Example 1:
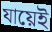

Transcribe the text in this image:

যায়েই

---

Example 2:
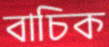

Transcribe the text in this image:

বাচিক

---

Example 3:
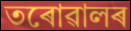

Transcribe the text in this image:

তৰোৱালৰ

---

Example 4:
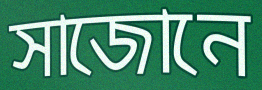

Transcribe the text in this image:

সাজোনে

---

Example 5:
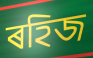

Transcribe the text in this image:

ৰহিজ